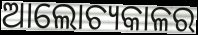
ଆଲୋଚ୍ୟକାଳର